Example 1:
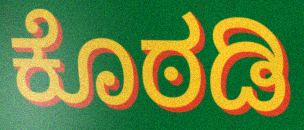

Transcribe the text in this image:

ಕೊಠಡಿ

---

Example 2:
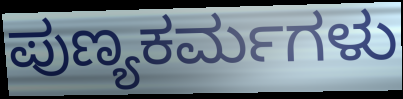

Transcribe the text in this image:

ಪುಣ್ಯಕರ್ಮಗಳು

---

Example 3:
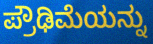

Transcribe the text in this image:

ಪ್ರೌಢಿಮೆಯನ್ನು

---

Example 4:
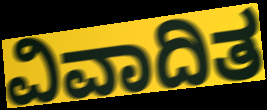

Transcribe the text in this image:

ವಿವಾದಿತ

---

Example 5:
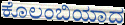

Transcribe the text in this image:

ಕೊಲಂಬಿಯಾದ